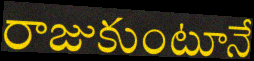
రాజుకుంటూనే